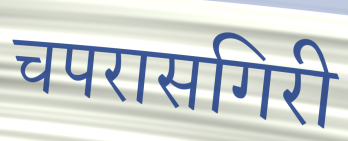
चपरासगिरी